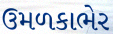
ઉમળકાભેર